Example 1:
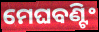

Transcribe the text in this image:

ମେଘବଣ୍ଟିଂ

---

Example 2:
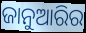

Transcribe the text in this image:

ଜାନୁଆରିର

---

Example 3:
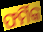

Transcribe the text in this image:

ଫର୍ମିକ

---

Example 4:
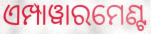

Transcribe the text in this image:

ଏମ୍ପାୱାରମେଣ୍ଟ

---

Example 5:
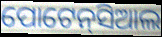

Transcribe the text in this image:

ପୋଟେନ୍‌ସିଆଲ